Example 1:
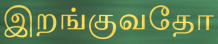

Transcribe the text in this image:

இறங்குவதோ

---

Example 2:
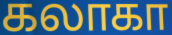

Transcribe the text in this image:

கலாகா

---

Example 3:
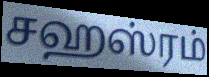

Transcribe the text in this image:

சஹஸ்ரம்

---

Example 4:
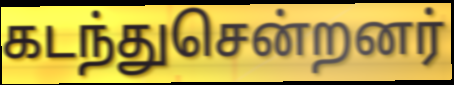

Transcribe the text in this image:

கடந்துசென்றனர்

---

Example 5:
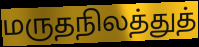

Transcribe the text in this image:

மருதநிலத்துத்